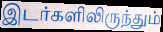
இடர்களிலிருந்தும்